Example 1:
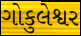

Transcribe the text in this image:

ગોકુલેશ્વર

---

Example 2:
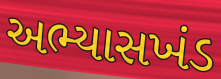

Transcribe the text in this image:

અભ્યાસખંડ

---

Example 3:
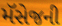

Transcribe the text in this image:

મૅસેજની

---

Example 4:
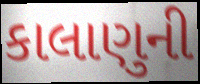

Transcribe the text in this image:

કાલાણુની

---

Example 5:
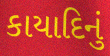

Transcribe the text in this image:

કાયાદિનું